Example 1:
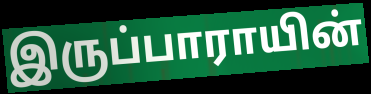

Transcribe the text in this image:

இருப்பாராயின்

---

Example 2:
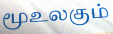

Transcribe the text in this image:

மூஉலகும்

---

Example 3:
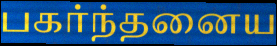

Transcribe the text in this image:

பகர்ந்தனைய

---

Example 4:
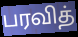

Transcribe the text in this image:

பரவித்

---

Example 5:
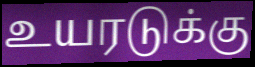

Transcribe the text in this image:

உயரடுக்கு